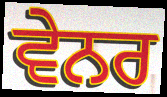
ਵੇਨਰ